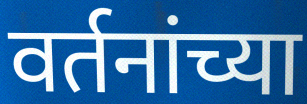
वर्तनांच्या